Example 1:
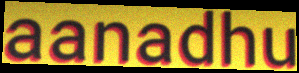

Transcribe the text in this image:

aanadhu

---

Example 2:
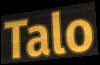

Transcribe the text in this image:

Talo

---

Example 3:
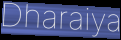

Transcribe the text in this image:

Dharaiya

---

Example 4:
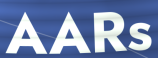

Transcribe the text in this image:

AARs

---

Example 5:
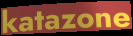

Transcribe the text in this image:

katazone